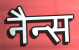
नैन्स